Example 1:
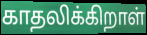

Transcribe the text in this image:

காதலிக்கிறாள்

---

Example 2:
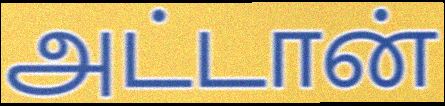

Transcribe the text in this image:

அட்டான்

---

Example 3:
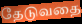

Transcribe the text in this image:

தேடுவதை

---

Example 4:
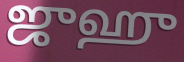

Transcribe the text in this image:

ஜுஹு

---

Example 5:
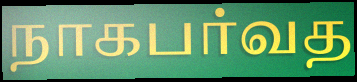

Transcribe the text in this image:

நாகபர்வத